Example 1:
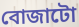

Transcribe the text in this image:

বোজাটো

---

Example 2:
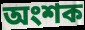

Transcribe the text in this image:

অংশক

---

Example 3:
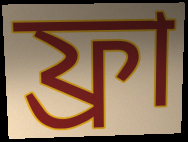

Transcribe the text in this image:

ফ্ৰা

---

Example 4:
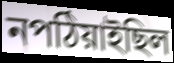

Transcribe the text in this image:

নপঠিয়াইছিল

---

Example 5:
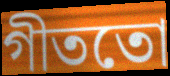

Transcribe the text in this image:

গীততো